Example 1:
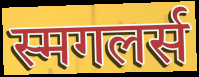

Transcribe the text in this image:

स्‍मगलर्स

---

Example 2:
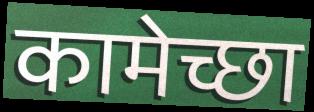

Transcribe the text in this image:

कामेच्छा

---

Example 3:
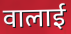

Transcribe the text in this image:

वालाई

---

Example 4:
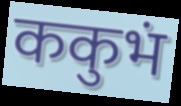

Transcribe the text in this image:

ककुभं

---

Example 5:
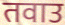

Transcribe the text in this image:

तवाउ